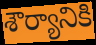
శౌర్యానికి